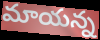
మాయన్న